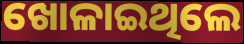
ଖୋଳାଇଥିଲେ